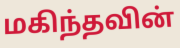
மகிந்தவின்